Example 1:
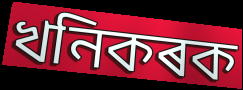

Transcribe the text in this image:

খনিকৰক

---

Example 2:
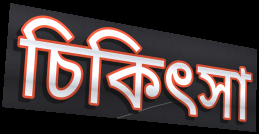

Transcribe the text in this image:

চিকিৎসা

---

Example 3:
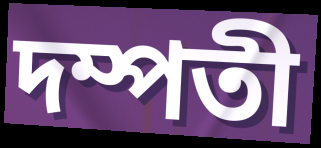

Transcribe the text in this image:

দম্পতী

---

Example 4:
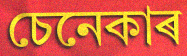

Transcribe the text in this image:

চেনেকাৰ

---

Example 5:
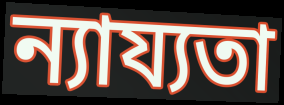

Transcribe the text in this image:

ন্যায্যতা